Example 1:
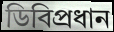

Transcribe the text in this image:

ডিবিপ্রধান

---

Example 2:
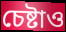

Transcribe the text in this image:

চেষ্টাও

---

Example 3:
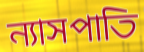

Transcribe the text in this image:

ন্যাসপাতি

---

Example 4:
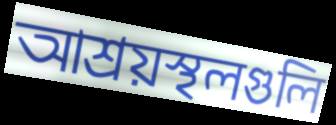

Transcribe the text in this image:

আশ্রয়স্থলগুলি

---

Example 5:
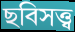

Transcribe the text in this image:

ছবিসত্ত্ব